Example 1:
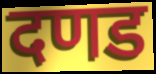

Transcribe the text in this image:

दणड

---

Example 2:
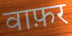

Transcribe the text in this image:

वाफ़र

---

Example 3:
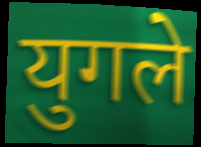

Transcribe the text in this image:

युगले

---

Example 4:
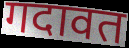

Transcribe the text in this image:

गदावत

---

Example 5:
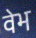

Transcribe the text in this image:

वेभ